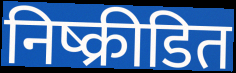
निष्क्रीडित